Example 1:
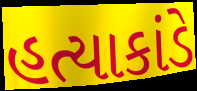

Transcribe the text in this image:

હત્યાકાંડે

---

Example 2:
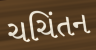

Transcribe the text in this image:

ચચિંતન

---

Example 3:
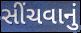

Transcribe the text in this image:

સીંચવાનું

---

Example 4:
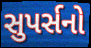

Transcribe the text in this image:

સુપર્સનો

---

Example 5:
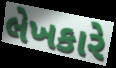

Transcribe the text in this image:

લેખકારે